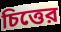
চিত্তের